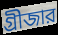
গ্রীজার